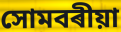
সোমবৰীয়া